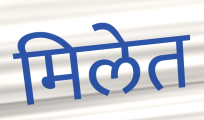
मिलेत